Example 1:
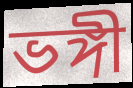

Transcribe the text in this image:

ভঙ্গী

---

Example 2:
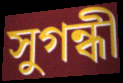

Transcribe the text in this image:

সুগন্ধী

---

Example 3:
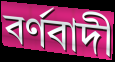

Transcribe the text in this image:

বৰ্ণবাদী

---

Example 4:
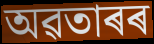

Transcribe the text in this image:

অৱতাৰৰ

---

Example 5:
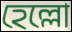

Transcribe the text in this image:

হেল্লো